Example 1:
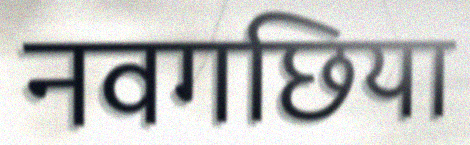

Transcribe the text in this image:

नवगछिया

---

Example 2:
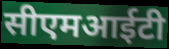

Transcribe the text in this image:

सीएमआईटी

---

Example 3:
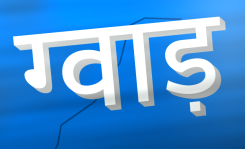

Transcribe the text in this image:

ग्वाड़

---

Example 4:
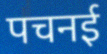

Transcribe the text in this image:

पचनई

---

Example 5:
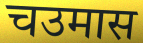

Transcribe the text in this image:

चउमास